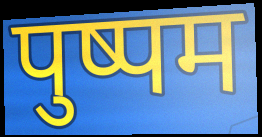
पुष्पम